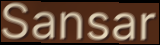
Sansar